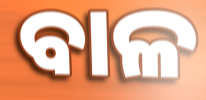
ବାଳ